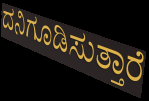
ದನಿಗೂಡಿಸುತ್ತಾರೆ